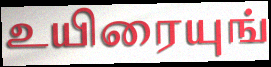
உயிரையுங்